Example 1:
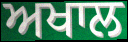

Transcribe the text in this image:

ਅਖਾਲ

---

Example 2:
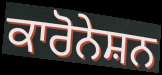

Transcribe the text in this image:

ਕਾਰੋਨੇਸ਼ਨ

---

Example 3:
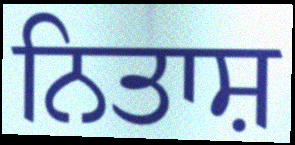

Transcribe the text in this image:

ਨਿਤਾਸ਼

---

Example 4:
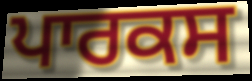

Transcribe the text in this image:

ਪਾਰਕਸ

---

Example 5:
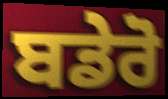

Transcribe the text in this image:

ਬਡੇਰੋ